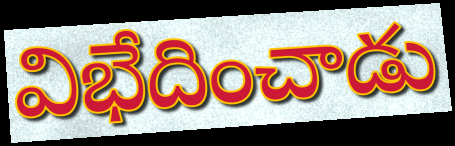
విభేదించాడు